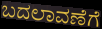
ಬದಲಾವಣೆಗೆ